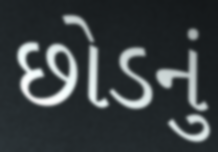
છોડનું